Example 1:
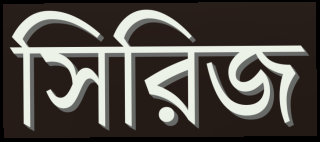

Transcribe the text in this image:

সিরিজ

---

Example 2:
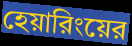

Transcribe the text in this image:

হেয়ারিংয়ের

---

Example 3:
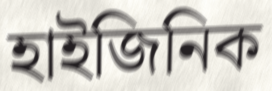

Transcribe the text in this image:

হাইজিনিক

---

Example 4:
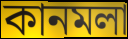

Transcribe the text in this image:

কানমলা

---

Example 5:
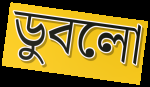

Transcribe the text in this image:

ডুবলো